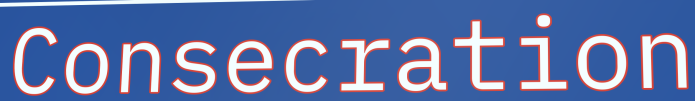
Consecration